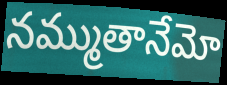
నమ్ముతానేమో